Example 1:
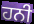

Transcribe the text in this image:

ਹਨੀ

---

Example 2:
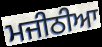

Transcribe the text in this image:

ਮਜੀਠੀਆ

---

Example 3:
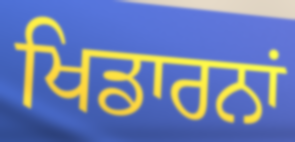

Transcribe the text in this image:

ਖਿਡਾਰਨਾਂ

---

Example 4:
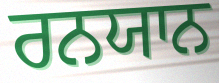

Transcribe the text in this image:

ਰਨਯਾਨ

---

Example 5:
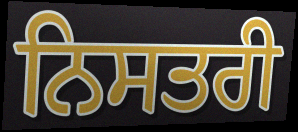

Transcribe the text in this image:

ਨਿਸਤਰੀ